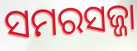
ସମରସଜ୍ଜା